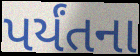
પર્યંતના